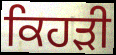
ਕਿਹੜੀ